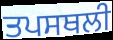
ਤਪਸਥਲੀ